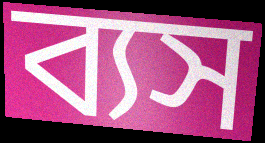
ব্যস